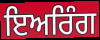
ਇਅਰਿੰਗ